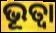
ଭୂତ୍ୱା